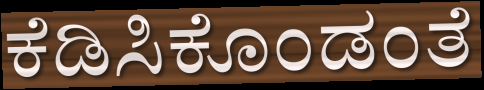
ಕೆಡಿಸಿಕೊಂಡಂತೆ